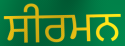
ਸੀਰਮਨ